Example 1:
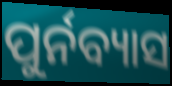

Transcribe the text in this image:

ପୁର୍ନବ୍ୟାସ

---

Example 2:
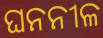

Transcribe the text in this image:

ଘନନୀଳ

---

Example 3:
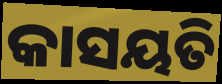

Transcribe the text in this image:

କାସୟତି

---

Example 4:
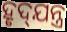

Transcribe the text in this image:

ହୃଦ୍‌ଯନ୍ତ୍ର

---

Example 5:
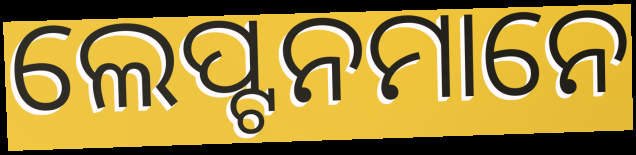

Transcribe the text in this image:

ଲେପ୍ଟନମାନେ